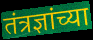
तंत्रज्ञांच्या